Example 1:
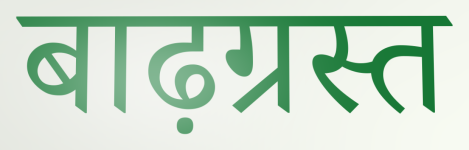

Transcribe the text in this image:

बाढ़ग्रस्त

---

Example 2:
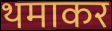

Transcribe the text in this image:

थमाकर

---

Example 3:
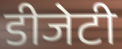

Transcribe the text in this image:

डीजेटी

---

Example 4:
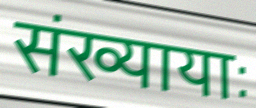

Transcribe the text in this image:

संख्यायाः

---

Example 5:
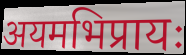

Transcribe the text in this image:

अयमभिप्रायः